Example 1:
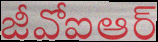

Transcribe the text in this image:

జీవోఐఆర్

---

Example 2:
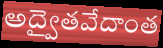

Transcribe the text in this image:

అద్వైతవేదాంత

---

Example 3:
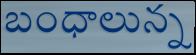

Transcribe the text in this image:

బంధాలున్న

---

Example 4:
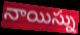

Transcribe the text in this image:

నాయిస్ను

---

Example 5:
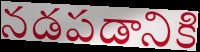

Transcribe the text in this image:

నడపడానికి